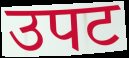
उपट